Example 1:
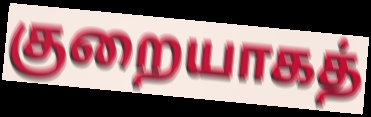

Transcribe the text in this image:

குறையாகத்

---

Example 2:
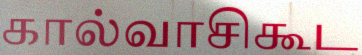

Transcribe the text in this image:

கால்வாசிகூட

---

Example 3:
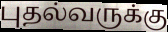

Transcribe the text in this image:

புதல்வருக்கு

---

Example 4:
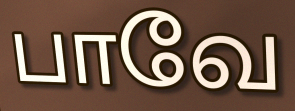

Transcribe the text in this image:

பாவே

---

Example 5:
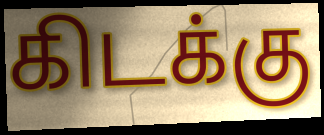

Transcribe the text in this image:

கிடக்கு